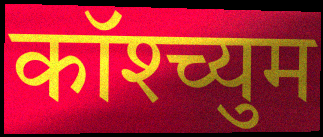
कॉश्च्युम